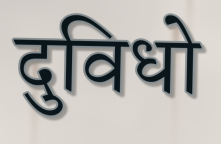
दुविधो